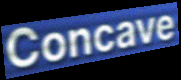
Concave